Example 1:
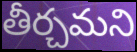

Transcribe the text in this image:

తీర్చమని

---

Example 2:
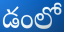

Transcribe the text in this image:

డంలో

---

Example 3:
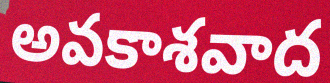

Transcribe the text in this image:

అవకాశవాద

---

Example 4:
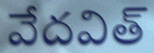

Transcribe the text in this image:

వేదవిత్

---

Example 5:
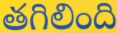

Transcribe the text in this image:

తగిలింది